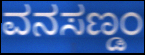
ವನಸಣ್ಡಂ